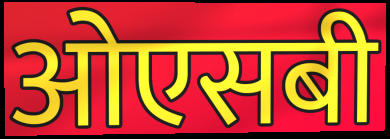
ओएसबी